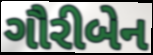
ગૌરીબેન